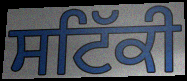
ਸਟਿੱਕੀ